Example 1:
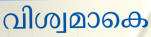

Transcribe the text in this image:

വിശ്വമാകെ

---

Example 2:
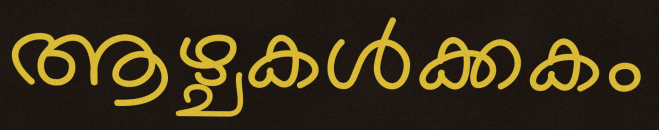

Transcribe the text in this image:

ആഴ്ചകൾക്കകം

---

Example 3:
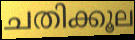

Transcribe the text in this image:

ചതിക്കൂല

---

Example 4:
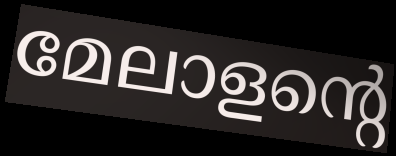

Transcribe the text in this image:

മേലാളന്റെ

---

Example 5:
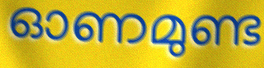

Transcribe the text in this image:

ഓണമുണ്ട